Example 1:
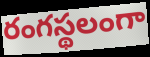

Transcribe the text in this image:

రంగస్థలంగా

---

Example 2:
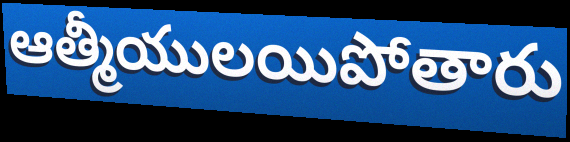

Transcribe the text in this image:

ఆత్మీయులయిపోతారు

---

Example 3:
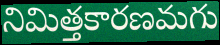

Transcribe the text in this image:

నిమిత్తకారణమగు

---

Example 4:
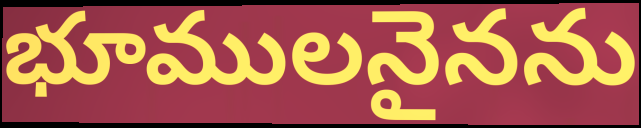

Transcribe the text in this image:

భూములనైనను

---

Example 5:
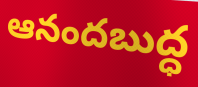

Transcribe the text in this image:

ఆనందబుద్ధ